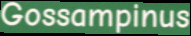
Gossampinus